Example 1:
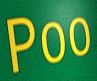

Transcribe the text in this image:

Poo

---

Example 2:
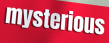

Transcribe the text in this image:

mysterious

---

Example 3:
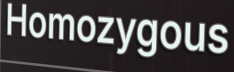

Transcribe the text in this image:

Homozygous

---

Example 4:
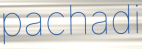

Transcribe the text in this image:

pachadi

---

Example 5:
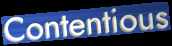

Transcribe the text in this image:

Contentious